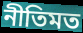
নীতিমত